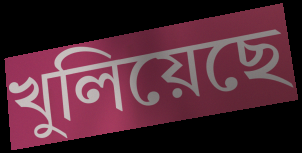
খুলিয়েছে